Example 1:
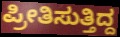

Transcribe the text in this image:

ಪ್ರೀತಿಸುತ್ತಿದ್ದ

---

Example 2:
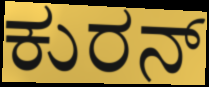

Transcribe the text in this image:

ಕುರನ್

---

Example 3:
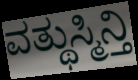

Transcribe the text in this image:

ವತ್ಥುಸ್ಮಿನ್ತಿ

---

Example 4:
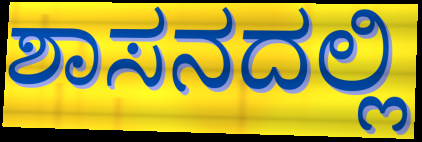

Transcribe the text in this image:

ಶಾಸನದಲ್ಲಿ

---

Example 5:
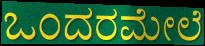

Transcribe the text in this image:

ಒಂದರಮೇಲೆ